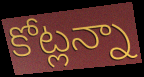
కోట్లన్నా